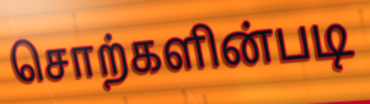
சொற்களின்படி